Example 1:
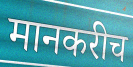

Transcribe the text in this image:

मानकरीच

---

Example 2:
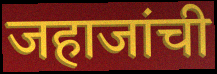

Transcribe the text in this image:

जहाजांची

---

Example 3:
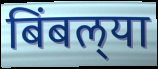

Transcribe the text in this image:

बिंबल्या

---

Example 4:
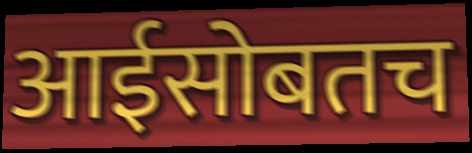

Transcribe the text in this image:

आईसोबतच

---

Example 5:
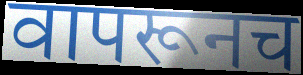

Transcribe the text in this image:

वापरूनच